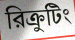
রিক্রুটিং